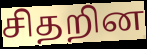
சிதறின